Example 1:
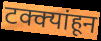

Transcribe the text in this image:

टक्क्यांहून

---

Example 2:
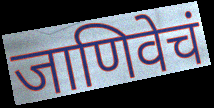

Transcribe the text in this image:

जाणिवेचं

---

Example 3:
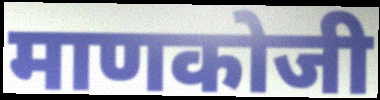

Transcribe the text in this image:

माणकोजी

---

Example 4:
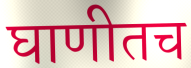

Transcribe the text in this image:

घाणीतच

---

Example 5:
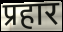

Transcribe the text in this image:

प्रहार